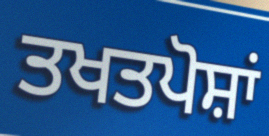
ਤਖਤਪੋਸ਼ਾਂ